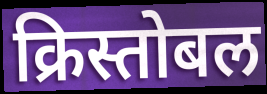
क्रिस्तोबल